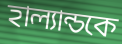
হাল্যান্ডকে